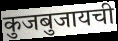
कुजबुजायची